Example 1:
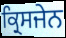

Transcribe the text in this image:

ਕ੍ਰਿਸਜੇਨ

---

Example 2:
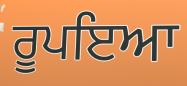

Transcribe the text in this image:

ਰੂਪਇਆ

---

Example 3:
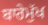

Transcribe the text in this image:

ਬਾਰੇਮੁੱਖ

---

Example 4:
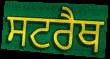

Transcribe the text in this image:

ਸਟਰੈਥ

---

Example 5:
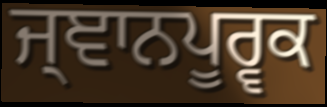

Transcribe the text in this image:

ਜ੍ਞਾਨਪੂਰ੍ਵਕ